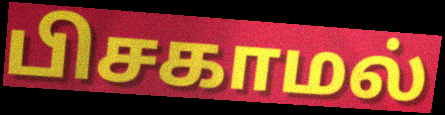
பிசகாமல்